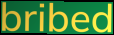
bribed